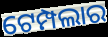
ଟେମ୍ପଲାର